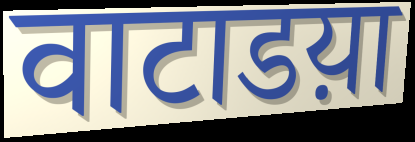
वाटाडय़ा